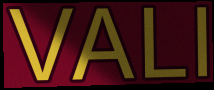
VALI